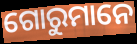
ଗୋରୁମାନେ